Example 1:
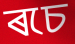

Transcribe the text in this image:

ৰচে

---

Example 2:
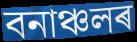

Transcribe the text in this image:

বনাঞ্চলৰ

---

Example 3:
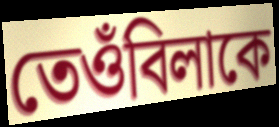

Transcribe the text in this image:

তেওঁবিলাকে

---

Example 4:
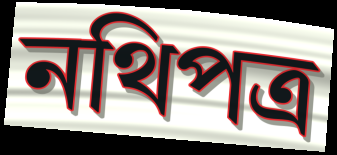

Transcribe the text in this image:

নথিপত্ৰ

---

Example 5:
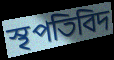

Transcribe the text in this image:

স্থপতিবিদ